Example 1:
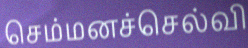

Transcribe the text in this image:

செம்மனச்செல்வி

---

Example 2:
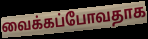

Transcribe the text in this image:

வைக்கப்போவதாக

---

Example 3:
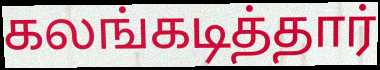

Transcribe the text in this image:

கலங்கடித்தார்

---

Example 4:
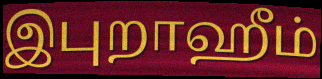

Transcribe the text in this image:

இபுறாஹீம்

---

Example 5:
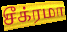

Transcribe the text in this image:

சீக்ரமா